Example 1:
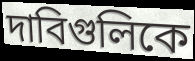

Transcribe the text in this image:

দাবিগুলিকে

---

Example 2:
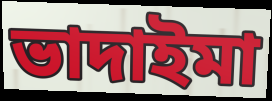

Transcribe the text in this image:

ভাদাইমা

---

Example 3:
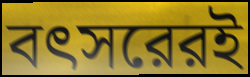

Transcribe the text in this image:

বৎসরেরই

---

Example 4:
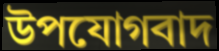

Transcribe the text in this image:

উপযোগবাদ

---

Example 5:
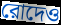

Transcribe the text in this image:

রোদেও